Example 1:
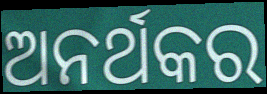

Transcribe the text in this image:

ଅନର୍ଥକର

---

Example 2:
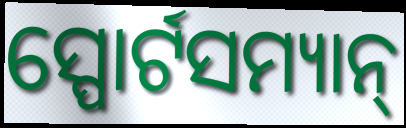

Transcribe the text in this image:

ସ୍ପୋର୍ଟସମ୍ୟାନ୍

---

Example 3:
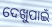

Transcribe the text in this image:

ଦେଖୁପାଇଁ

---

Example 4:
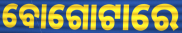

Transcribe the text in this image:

ବୋଗୋଟାରେ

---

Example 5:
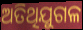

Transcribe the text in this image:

ଅତିଥିଯୁଗଳ